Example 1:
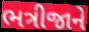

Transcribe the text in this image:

ભત્રીજાને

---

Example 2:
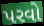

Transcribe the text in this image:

પરવો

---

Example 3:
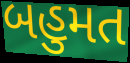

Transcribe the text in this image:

બહુમત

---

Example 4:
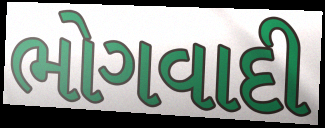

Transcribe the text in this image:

ભોગવાદી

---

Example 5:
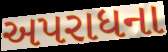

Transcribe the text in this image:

અપરાધના